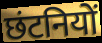
छंटनियों